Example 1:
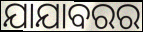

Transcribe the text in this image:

ଯାଯାବରର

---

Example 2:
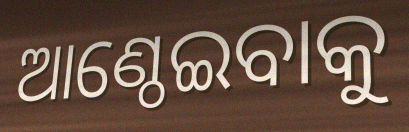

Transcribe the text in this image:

ଆଣ୍ଠେଇବାକୁ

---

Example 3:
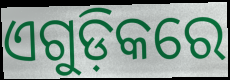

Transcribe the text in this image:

ଏଗୁଡ଼ିକରେ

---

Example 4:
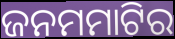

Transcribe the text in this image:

ଜନମମାଟିର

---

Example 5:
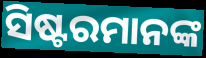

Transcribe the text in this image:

ସିଷ୍ଟରମାନଙ୍କ